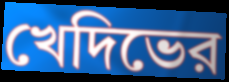
খেদিভের